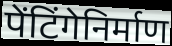
पेंटिंगेनिर्माण